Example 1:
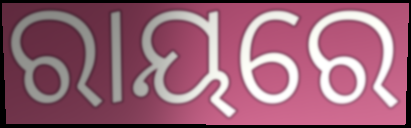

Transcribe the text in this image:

ରାୟରେ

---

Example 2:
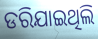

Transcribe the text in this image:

ଡରିଯାଇଥିଲି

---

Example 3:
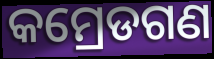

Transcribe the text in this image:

କମ୍ରେଡଗଣ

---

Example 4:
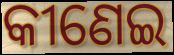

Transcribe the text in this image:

କୀଣେଇ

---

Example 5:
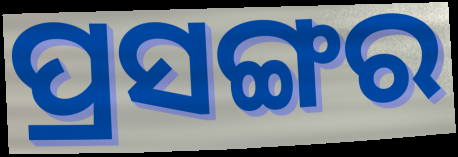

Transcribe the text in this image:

ପ୍ରସଙ୍ଗର